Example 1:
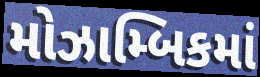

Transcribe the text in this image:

મોઝામ્બિકમાં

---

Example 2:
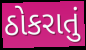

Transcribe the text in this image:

ઠોકરાતું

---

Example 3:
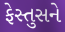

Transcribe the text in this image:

ફેસ્તુસને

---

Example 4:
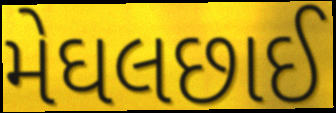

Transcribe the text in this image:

મેઘલછાઈ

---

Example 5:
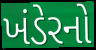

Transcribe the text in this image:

ખંડેરનો